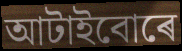
আটাইবোৰে